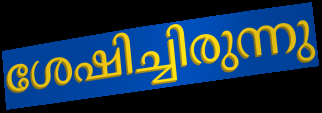
ശേഷിച്ചിരുന്നു